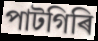
পাটগিৰি